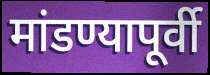
मांडण्यापूर्वी